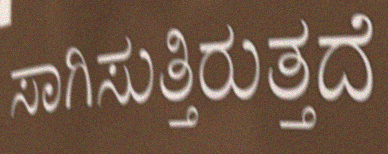
ಸಾಗಿಸುತ್ತಿರುತ್ತದೆ